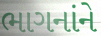
ભાગનાંને